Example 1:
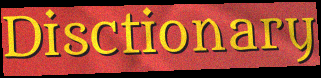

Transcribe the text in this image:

Disctionary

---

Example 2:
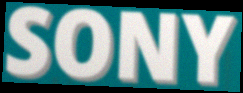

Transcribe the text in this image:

SONY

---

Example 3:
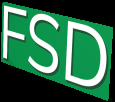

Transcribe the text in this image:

FSD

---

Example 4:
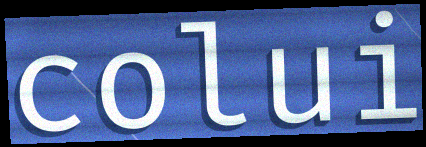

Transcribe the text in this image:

colui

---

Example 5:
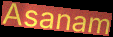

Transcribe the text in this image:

Asanam